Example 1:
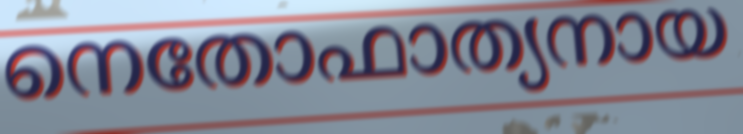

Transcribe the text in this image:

നെതോഫാത്യനായ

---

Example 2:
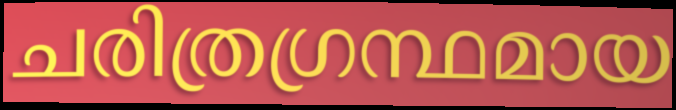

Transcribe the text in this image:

ചരിത്രഗ്രന്ഥമായ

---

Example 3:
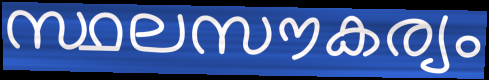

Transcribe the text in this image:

സ്ഥലസൗകര്യം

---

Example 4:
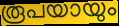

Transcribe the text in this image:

രൂപയായും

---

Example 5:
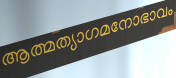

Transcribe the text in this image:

ആത്മത്യാഗമനോഭാവം